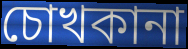
চোখকানা